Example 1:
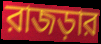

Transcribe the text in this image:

রাজড়ার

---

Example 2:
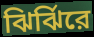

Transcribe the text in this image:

ঝির্ঝিরে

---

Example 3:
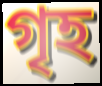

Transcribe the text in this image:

গৃহ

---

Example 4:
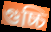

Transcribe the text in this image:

গুচ্চি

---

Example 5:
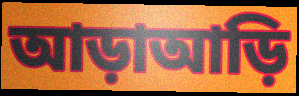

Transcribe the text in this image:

আড়াআড়ি